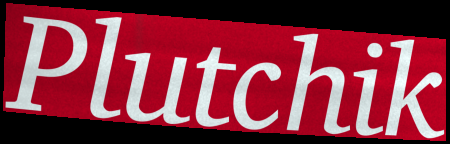
Plutchik